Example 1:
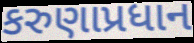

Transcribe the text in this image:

કરુણાપ્રધાન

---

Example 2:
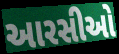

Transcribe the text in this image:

આરસીઓ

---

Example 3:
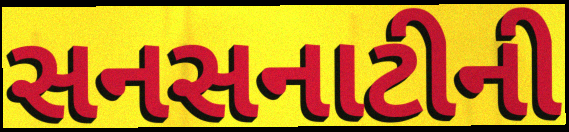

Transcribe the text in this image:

સનસનાટીની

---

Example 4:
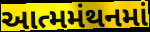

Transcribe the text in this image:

આત્મમંથનમાં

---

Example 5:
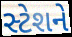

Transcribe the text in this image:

સ્ટેશને